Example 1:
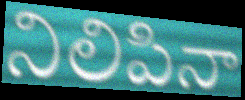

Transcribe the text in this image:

నిలిపినా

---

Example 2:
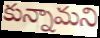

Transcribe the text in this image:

కున్నామని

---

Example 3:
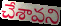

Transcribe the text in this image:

చేశావని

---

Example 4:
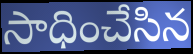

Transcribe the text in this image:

సాధించేసిన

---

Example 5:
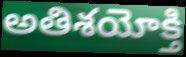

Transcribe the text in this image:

అతిశయోక్తి